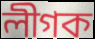
লীগক